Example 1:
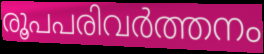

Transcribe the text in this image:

രൂപപരിവർത്തനം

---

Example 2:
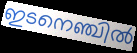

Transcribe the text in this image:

ഇടനെഞ്ചിൽ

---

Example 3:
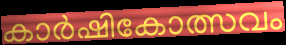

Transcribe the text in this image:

കാർഷികോത്സവം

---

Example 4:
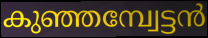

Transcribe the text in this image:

കുഞ്ഞമ്പ്വേട്ടൻ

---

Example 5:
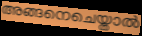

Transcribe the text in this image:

അങ്ങനെചെയ്താൽ